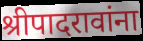
श्रीपादरावांना